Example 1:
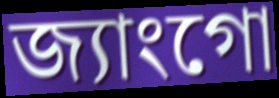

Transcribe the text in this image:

জ্যাংগো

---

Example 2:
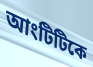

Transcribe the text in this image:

আংটিটিকে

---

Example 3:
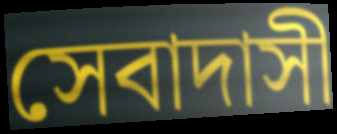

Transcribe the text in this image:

সেবাদাসী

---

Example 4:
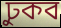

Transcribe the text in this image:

ঢুকব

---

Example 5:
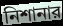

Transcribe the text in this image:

নিশানার